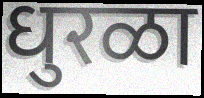
धुरळा